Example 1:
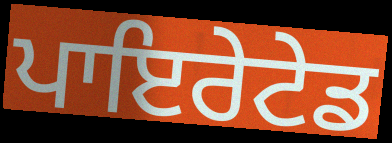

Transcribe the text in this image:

ਪਾਇਰੇਟੇਡ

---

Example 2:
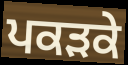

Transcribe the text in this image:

ਪਕੜਕੇ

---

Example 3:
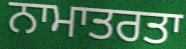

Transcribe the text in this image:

ਨਾਮਾਤਰਤਾ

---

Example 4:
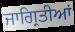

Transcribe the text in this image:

ਜਾਗ੍ਰਿਤੀਆਂ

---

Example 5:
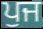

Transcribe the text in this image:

ਪੁਜ